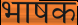
भाषक